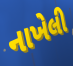
નાખેલી